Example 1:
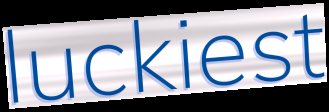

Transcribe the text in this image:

luckiest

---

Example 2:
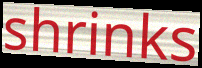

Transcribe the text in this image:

shrinks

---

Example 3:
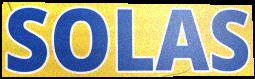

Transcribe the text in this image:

SOLAS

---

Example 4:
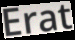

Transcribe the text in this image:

Erat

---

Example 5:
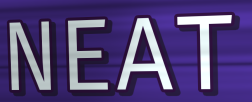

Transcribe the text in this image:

NEAT